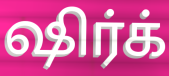
ஷிர்க்